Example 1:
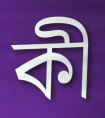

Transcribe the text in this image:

কী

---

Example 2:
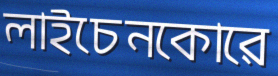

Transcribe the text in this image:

লাইচেনকোৱে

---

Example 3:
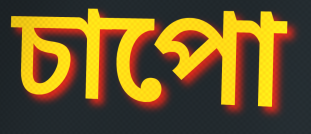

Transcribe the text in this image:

চাপো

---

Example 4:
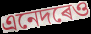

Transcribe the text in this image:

এনেদৰেও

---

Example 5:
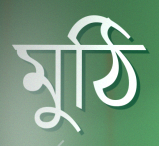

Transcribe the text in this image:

মুঠি